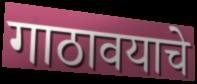
गाठावयाचे